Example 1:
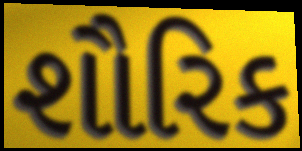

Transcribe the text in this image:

શૌરિક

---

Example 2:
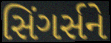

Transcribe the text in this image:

સિંગર્સને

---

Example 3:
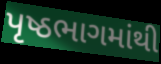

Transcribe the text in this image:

પૃષ્ઠભાગમાંથી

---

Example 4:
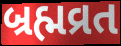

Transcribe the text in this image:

બ્રહ્મવ્રત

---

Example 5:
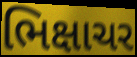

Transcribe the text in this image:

ભિક્ષાચર